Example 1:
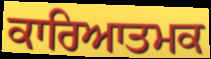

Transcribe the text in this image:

ਕਾਰਿਆਤਮਕ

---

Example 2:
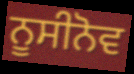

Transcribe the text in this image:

ਨੂਸੀਨੋਵ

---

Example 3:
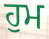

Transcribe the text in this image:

ਹੁਮ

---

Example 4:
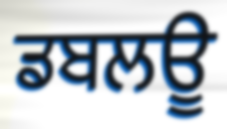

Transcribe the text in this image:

ਡਬਲਊ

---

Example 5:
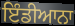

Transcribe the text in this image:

ਇੰਡੀਆਨਾ